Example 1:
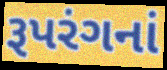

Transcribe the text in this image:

રૂપરંગનાં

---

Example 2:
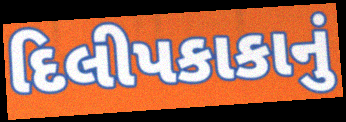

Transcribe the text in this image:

દિલીપકાકાનું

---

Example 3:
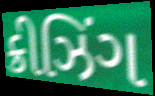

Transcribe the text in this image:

ક્રીઝિંગ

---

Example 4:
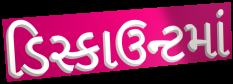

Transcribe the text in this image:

ડિસ્કાઉન્ટમાં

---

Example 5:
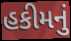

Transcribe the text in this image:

હકીમનું